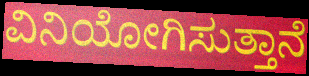
ವಿನಿಯೋಗಿಸುತ್ತಾನೆ